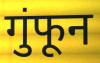
गुंफून